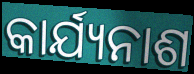
କାର୍ଯ୍ୟନାଶ